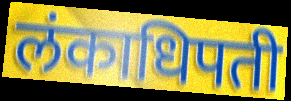
लंकाधिपती